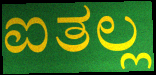
ಐತಲ್ಲ